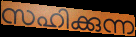
സഹിക്കുന്ന